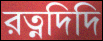
রত্নদিদি